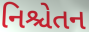
નિશ્ચેતન